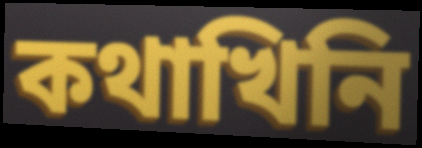
কথাখিনি